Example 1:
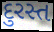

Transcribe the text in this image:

દુરસ્ત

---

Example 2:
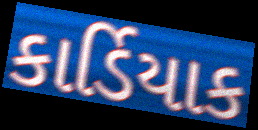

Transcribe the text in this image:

કાર્ડિયાક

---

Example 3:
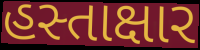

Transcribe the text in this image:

હસ્તાક્ષાર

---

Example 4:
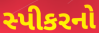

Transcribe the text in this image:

સ્પીકરનો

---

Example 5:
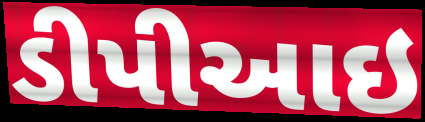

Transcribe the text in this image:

ડીપીઆઇ